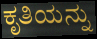
ಕೃತಿಯನ್ನು